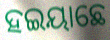
ହଇୟାଛେ